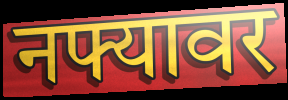
नफ्यावर